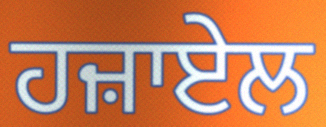
ਹਜ਼ਾਏਲ